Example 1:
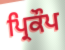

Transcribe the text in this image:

ਪ੍ਰਿਕੌਪ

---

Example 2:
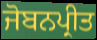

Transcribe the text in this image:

ਜੋਬਨਪ੍ਰੀਤ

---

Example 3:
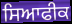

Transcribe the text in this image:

ਸਿਆਫੀਕ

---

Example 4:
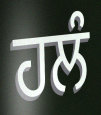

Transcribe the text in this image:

ਹਲੰ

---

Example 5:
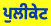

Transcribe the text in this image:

ਪੁਲੀਕੇਟ